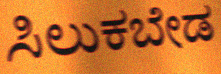
ಸಿಲುಕಬೇಡ